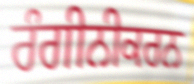
ਰੰਗੀਨੀਕਰਨ